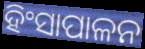
ହିଂସାପାଳନ